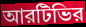
আরটিভির